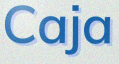
Caja